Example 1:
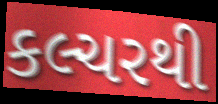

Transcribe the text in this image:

કલ્ચરથી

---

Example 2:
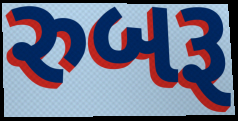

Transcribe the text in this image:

રુબરૂ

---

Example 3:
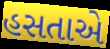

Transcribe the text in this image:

હસતાએ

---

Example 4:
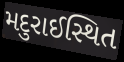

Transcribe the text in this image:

મદુરાઈસ્થિત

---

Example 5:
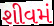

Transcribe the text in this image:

શીવમં